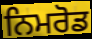
ਨਿਮਰੋਡ